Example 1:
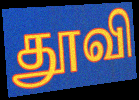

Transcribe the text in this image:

தூவி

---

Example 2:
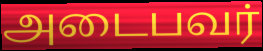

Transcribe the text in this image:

அடைபவர்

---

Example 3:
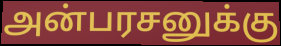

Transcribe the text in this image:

அன்பரசனுக்கு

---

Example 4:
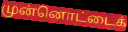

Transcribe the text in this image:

முன்னொட்டைக்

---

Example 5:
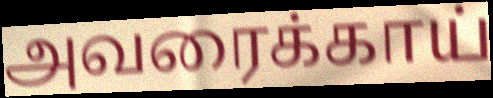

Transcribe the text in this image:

அவரைக்காய்